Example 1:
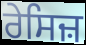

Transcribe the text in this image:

ਰੇਸਿਜ਼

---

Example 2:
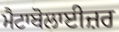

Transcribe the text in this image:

ਮੈਟਾਬੋਲਾਈਜ਼ਰ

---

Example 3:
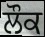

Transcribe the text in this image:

ਲੌਕ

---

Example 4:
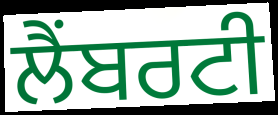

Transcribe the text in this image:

ਲੈਂਬਰਟੀ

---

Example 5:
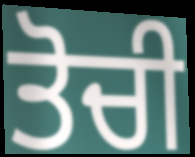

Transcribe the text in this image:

ਤੋਚੀ